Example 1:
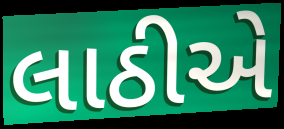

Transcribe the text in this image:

લાઠીએ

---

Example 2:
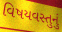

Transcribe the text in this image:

વિષયવસ્તુનું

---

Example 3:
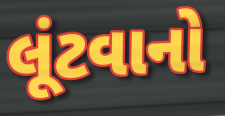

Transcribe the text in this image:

લૂંટવાનો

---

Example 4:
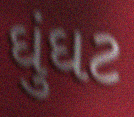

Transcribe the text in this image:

ઘુંઘટ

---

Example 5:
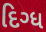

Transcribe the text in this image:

દિગ્ધ